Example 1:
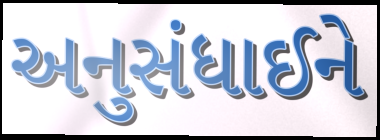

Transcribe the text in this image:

અનુસંધાઈને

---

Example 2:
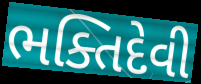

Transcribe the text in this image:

ભક્તિદેવી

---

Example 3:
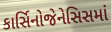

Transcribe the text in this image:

કાર્સિનોજેનેસિસમાં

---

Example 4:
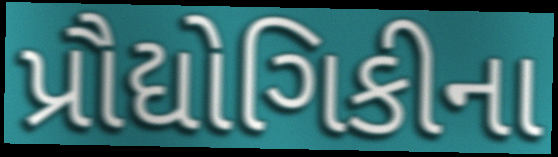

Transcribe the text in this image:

પ્રૌદ્યોગિકીના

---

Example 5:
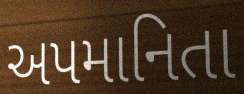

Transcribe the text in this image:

અપમાનિતા